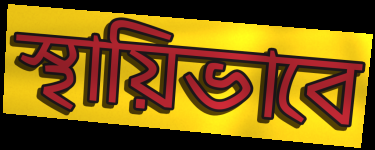
স্থায়িভাবে